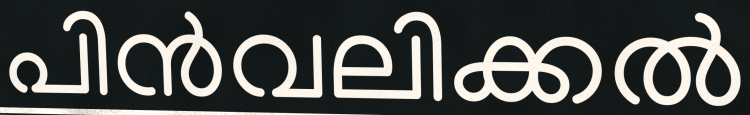
പിൻവലിക്കൽ